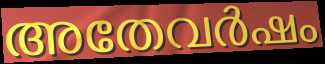
അതേവർഷം